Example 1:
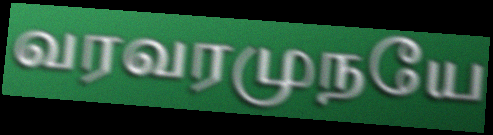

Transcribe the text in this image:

வரவரமுநயே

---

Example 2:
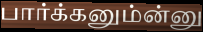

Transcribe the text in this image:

பார்க்கனும்ன்னு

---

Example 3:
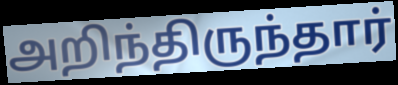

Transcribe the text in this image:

அறிந்திருந்தார்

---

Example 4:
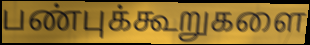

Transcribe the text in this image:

பண்புக்கூறுகளை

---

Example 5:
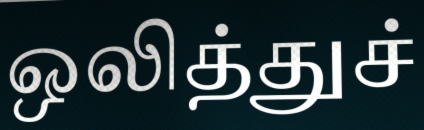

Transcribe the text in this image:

ஒலித்துச்